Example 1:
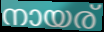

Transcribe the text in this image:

നായര്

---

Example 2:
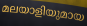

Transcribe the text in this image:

മലയാളിയുമായ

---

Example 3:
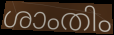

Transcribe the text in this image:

ശാംതിം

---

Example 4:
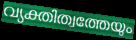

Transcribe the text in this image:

വ്യക്തിത്വത്തേയും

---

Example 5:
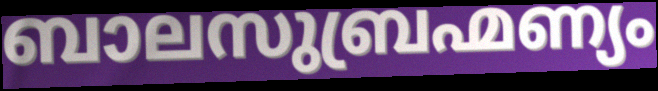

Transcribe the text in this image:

ബാലസുബ്രഹ്മണ്യം